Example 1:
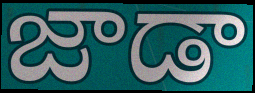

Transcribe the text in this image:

జాడా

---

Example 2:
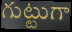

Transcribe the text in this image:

గుట్టుగా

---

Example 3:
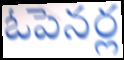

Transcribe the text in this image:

ఓపెనర్ల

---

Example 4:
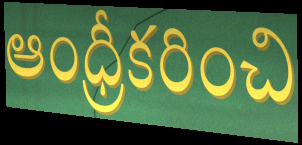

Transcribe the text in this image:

ఆంధ్రీకరించి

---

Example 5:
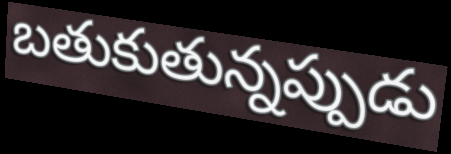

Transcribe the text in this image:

బతుకుతున్నప్పుడు